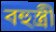
বহুস্ত্ৰী